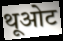
थूओट